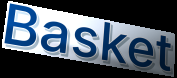
Basket